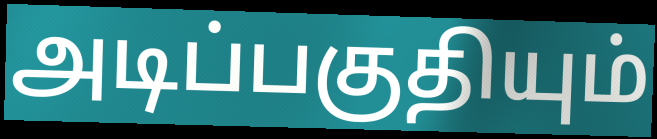
அடிப்பகுதியும்